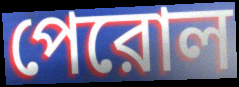
পেরোল